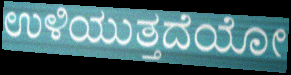
ಉಳಿಯುತ್ತದೆಯೋ